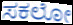
ಸಕಲೋ